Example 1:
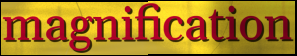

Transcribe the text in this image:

magnification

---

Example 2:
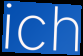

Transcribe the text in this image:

ich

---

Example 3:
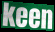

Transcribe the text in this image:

keen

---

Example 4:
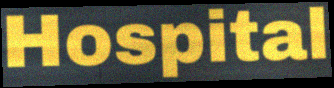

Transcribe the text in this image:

Hospital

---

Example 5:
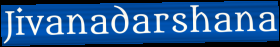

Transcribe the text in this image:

Jivanadarshana